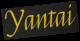
Yantai